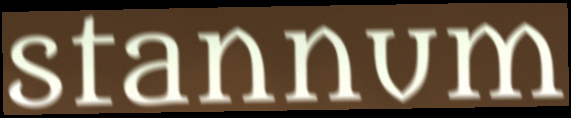
stannum